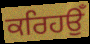
ਕਰਿਹਉਁ